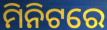
ମିନିଟରେ